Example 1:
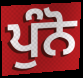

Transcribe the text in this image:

ਪੁੰਨੋ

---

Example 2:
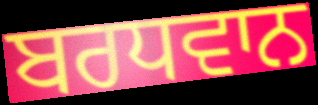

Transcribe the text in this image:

ਬਰਧਵਾਨ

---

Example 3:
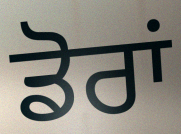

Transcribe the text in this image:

ਡੋਰਾਂ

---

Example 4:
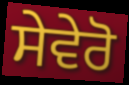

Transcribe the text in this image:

ਸੇਵੇਰੋ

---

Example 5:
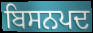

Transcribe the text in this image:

ਬਿਸਨਪਦ